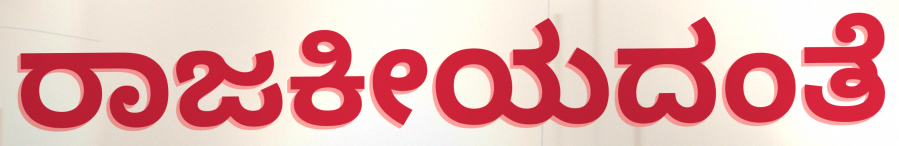
ರಾಜಕೀಯದಂತೆ